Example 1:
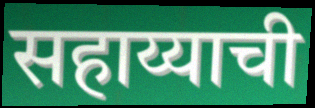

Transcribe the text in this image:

सहाय्याची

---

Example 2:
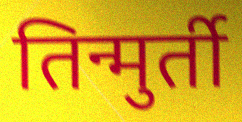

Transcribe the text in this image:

तिन्मुर्ती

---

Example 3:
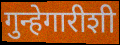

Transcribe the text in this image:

गुन्हेगारीशी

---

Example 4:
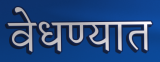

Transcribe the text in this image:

वेधण्यात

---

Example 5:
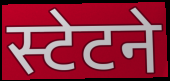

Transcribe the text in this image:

स्टेटने